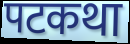
पटकथा